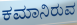
ಕಮಾನಿರುವ